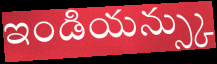
ఇండియన్స్కు